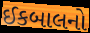
ઈકબાલનો